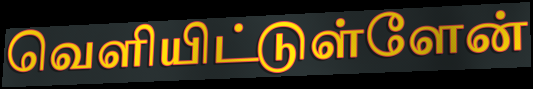
வெளியிட்டுள்ளேன்